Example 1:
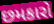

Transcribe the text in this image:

છમકારો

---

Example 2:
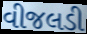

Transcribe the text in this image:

વીજલડી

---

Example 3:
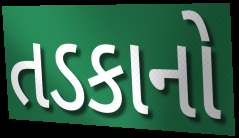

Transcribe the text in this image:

તડકાનો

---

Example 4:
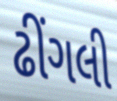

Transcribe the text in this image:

ઢીંગલી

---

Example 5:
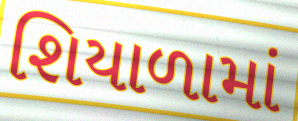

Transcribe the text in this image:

શિયાળામાં